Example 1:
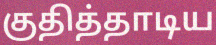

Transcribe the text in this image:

குதித்தாடிய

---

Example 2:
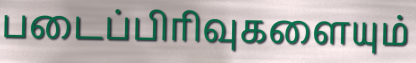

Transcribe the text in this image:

படைப்பிரிவுகளையும்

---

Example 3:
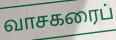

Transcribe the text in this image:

வாசகரைப்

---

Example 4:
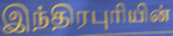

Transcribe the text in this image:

இந்திரபுரியின்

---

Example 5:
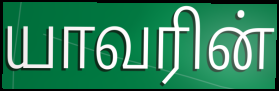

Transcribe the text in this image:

யாவரின்